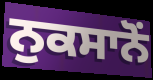
ਨੁਕਸਾਨੋਂ